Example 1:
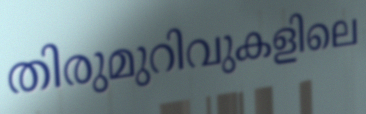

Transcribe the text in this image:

തിരുമുറിവുകളിലെ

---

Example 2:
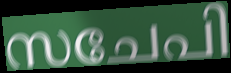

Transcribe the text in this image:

സചേപി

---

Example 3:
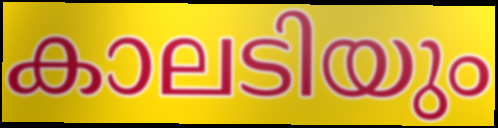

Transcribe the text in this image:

കാലടിയും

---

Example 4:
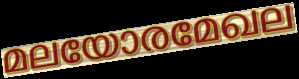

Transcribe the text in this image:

മലയോരമേഖല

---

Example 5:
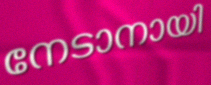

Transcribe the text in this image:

നേടാനായി